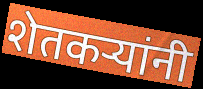
शेतकऱ्यांनी